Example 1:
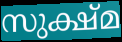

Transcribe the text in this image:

സുക്ഷ്മ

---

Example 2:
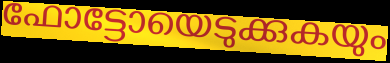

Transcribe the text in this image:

ഫോട്ടോയെടുക്കുകയും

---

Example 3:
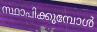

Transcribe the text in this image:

സ്ഥാപിക്കുമ്പോൾ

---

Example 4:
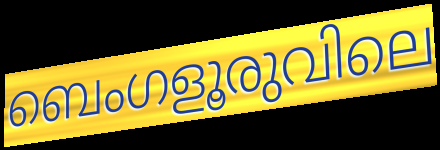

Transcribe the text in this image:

ബെംഗളൂരുവിലെ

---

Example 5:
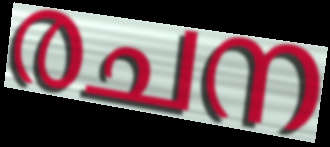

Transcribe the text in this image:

രചന